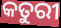
କତୁରୀ